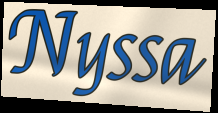
Nyssa